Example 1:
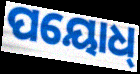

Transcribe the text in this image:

ପୟୋଧ୍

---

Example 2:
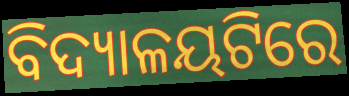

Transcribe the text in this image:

ବିଦ୍ୟାଳୟଟିରେ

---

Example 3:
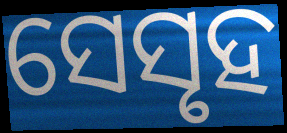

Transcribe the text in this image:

ସେସୃହ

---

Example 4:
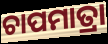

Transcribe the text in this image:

ଚାପମାତ୍ରା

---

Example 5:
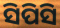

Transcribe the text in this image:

ସିପିସି